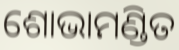
ଶୋଭାମଣ୍ଡିତ